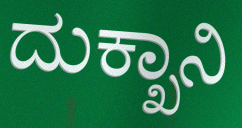
ದುಕ್ಖಾನಿ